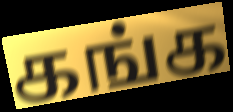
கங்க